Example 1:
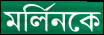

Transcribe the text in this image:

মর্লিনকে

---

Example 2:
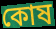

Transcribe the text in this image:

কোষ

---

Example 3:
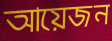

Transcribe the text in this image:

আয়েজন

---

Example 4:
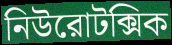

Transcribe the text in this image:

নিউরোটক্সিক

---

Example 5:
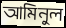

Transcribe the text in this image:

আমিনুল